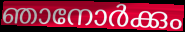
ഞാനോർക്കും